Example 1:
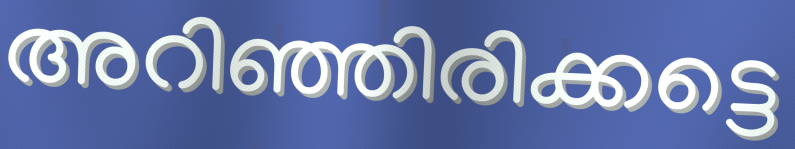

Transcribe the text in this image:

അറിഞ്ഞിരിക്കട്ടെ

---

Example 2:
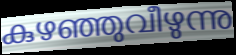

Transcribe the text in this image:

കുഴഞ്ഞുവീഴുന്നു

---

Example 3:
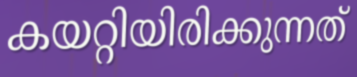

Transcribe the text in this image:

കയറ്റിയിരിക്കുന്നത്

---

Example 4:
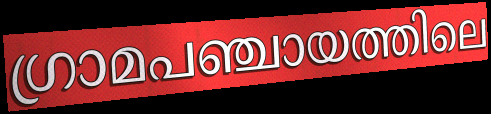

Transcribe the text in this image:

ഗ്രാമപഞ്ചായത്തിലെ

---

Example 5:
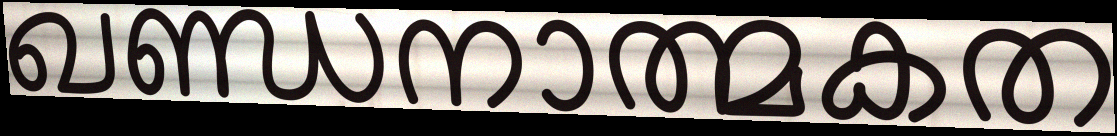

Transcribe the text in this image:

ഖണ്ഡനാത്മകത